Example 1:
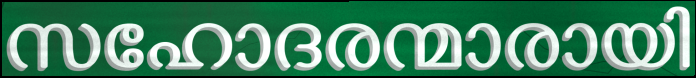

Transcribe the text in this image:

സഹോദരന്മാരായി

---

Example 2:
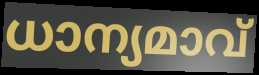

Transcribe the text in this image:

ധാന്യമാവ്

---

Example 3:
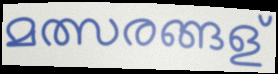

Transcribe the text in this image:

മത്സരങ്ങള്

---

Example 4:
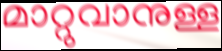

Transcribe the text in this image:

മാറ്റുവാനുള്ള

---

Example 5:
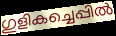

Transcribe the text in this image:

ഗുളികച്ചെപ്പിൽ